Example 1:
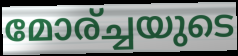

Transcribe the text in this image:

മോര്ച്ചയുടെ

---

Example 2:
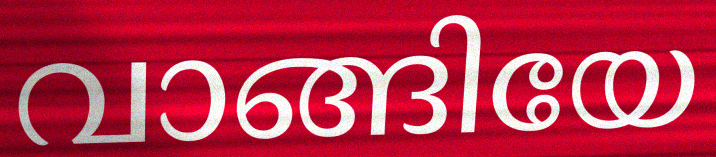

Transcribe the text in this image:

വാങ്ങിയേ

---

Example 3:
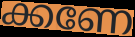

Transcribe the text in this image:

ക്കണേ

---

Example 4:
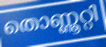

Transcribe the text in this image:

തൊണ്ണൂറ്റി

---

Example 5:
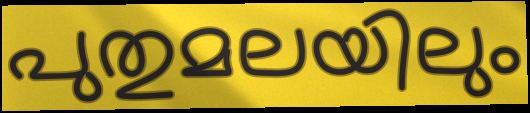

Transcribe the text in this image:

പുതുമലയിലും